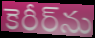
కెరీర్‌ను